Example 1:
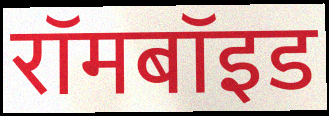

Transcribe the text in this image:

रॉमबॉइड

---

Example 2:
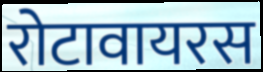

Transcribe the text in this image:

रोटावायरस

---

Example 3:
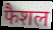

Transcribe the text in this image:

फैशल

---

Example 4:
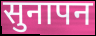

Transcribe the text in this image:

सुनापन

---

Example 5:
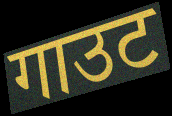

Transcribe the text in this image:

गाउट